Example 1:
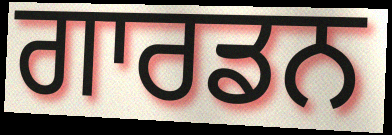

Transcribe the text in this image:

ਗਾਰਡਨ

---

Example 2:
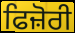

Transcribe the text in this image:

ਫਿਜ਼ੋਰੀ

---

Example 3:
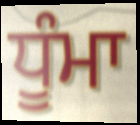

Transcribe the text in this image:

ਧੂੰਮਾ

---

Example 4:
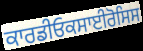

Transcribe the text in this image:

ਕਾਰਡੀਓਕਸਾਈਰੋਸਿਸ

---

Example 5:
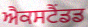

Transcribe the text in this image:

ਐਕਸਟੈਂਡਡ